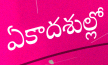
ఏకాదశుల్లో